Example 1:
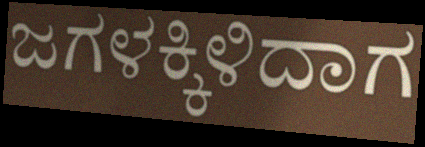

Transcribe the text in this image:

ಜಗಳಕ್ಕಿಳಿದಾಗ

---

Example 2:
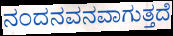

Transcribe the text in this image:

ನಂದನವನವಾಗುತ್ತದೆ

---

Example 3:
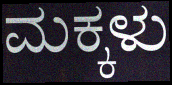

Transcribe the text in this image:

ಮಕ್ಕಳು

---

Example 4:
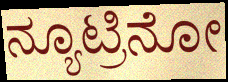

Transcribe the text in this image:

ನ್ಯೂಟ್ರಿನೋ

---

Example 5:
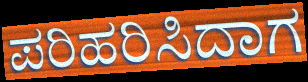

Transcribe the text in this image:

ಪರಿಹರಿಸಿದಾಗ